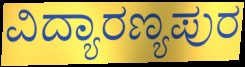
ವಿದ್ಯಾರಣ್ಯಪುರ